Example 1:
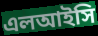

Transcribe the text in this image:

এলআইসি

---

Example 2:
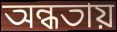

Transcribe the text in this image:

অন্ধতায়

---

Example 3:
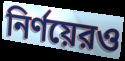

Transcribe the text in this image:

নির্ণয়েরও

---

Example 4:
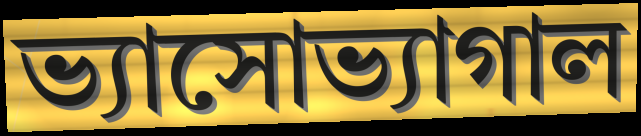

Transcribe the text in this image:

ভ্যাসোভ্যাগাল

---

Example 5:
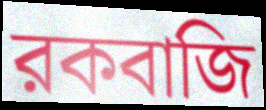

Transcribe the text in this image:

রকবাজি